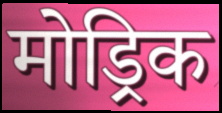
मोड्रिक